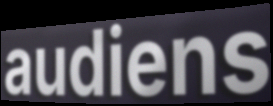
audiens